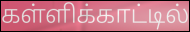
கள்ளிக்காட்டில்